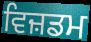
ਵਿਜ਼ਡਮ